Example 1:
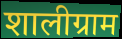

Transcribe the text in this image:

शालीग्राम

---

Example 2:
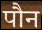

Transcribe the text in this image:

पौन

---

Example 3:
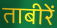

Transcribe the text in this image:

ताबीरें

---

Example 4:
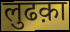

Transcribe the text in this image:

लुढक़ा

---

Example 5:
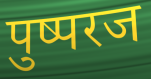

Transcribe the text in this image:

पुष्परज